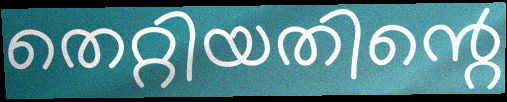
തെറ്റിയതിന്റെ